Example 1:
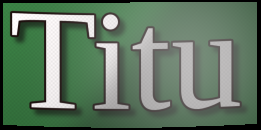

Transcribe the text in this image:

Titu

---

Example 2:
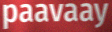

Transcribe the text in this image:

paavaay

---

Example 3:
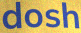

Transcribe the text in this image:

dosh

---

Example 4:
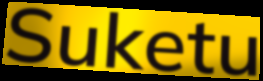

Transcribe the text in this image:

Suketu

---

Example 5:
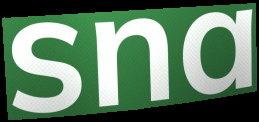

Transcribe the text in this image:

sna